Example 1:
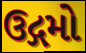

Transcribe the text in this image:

ઉદ્ગમો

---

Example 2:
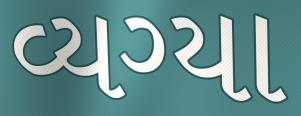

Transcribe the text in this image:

વ્યગ્યા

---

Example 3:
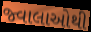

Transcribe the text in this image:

જ્વાલાઓથી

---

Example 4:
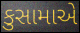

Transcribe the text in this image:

કુસામાએ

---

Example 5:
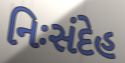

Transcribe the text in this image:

નિઃસંદેહ